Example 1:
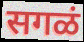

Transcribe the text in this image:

सगळं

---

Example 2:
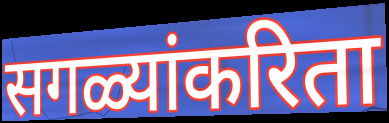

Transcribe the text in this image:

सगळ्यांकरिता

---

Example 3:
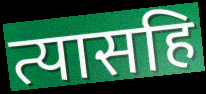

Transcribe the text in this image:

त्यासहि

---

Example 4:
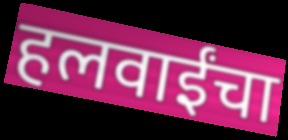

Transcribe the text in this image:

हलवाईंचा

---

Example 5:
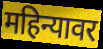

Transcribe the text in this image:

महिन्यावर